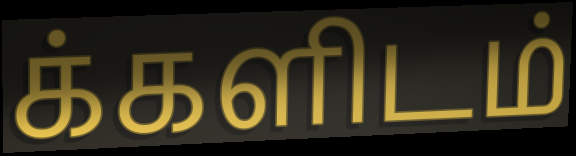
க்களிடம்